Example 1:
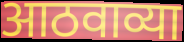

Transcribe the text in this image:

आठवाव्या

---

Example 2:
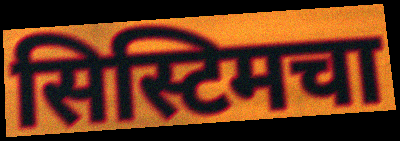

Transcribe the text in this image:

सिस्टिमचा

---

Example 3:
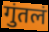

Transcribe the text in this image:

गुंतलं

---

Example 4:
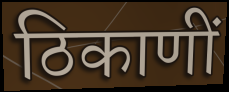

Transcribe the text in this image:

ठिकाणीं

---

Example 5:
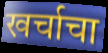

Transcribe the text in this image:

खर्चाचा